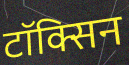
टॉक्सिन